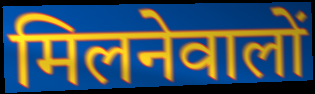
मिलनेवालों